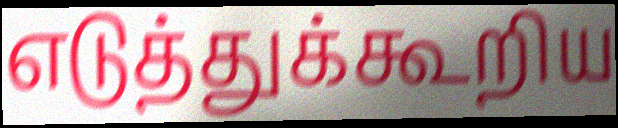
எடுத்துக்கூறிய